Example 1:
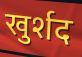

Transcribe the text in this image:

खुर्शद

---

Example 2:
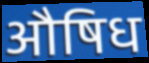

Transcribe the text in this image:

औषिध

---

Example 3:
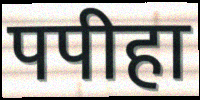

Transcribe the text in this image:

पपीहा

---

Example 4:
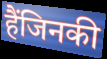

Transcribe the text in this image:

हैंजिनकी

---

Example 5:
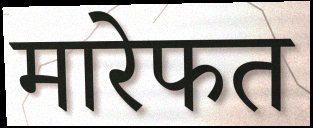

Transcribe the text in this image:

मारेफत